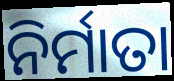
ନିର୍ମାତା